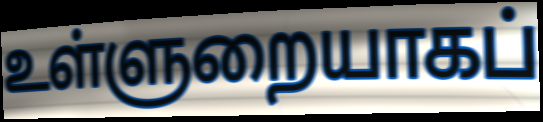
உள்ளுறையாகப்